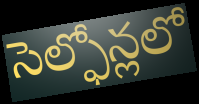
సెల్ఫోన్లలో